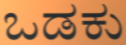
ಒಡಕು